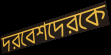
দরবেশদেরকে